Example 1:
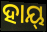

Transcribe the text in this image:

ହାୟ୍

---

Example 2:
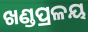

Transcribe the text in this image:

ଖଣ୍ଡପ୍ରଳୟ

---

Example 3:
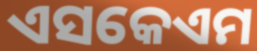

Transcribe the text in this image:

ଏସକେଏମ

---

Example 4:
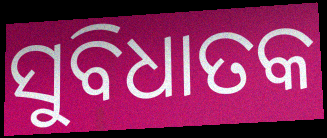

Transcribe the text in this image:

ସୁବିଧାତକ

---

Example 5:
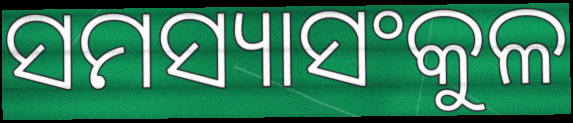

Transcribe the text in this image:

ସମସ୍ୟାସଂକୁଳ